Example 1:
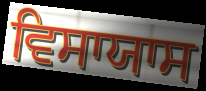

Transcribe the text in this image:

ਵਿਸਾਯਾਸ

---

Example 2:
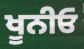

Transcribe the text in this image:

ਖੂਨੀਓ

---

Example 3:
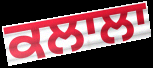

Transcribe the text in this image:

ਕਲਾਲਾ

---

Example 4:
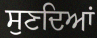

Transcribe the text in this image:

ਸੁਣਦਿਆਂ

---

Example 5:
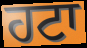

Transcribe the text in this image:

ਹਟਾ